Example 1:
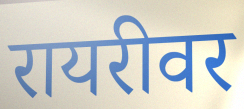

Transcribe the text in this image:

रायरीवर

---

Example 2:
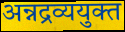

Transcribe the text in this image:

अन्नद्रव्ययुक्त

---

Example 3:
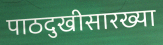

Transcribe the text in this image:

पाठदुखीसारख्या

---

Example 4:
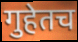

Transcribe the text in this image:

गुहेतच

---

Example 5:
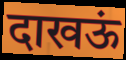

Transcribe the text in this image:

दाखऊं